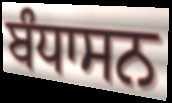
ਬੰਧਾਸਨ